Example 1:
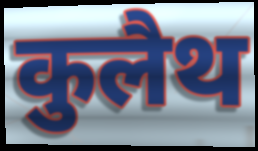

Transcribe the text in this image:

कुलैथ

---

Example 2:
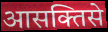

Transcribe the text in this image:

आसक्तिसे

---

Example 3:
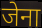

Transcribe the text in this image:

जेना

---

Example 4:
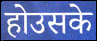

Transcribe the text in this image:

होउसके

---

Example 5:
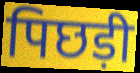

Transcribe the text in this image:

पिछड़ी